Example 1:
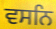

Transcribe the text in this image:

ਵਸਨਿ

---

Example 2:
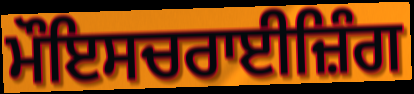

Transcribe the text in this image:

ਮੌਇਸਚਰਾਈਜ਼ਿੰਗ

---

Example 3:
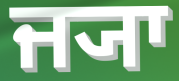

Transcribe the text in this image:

ਜ੍ਯਾ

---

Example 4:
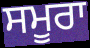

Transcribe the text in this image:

ਸਮੂਰਾ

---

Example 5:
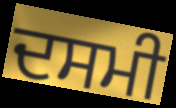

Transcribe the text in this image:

ਦਸਮੀ